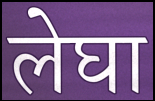
लेघा